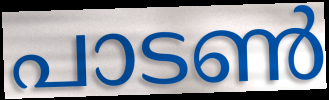
പാടൺ